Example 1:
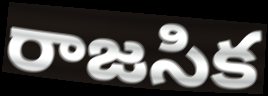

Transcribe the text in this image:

రాజసిక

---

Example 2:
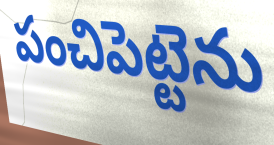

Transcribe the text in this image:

పంచిపెట్టెను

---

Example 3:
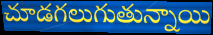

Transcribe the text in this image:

చూడగలుగుతున్నాయి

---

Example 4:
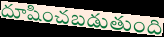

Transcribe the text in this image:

దూషించబడుతుంది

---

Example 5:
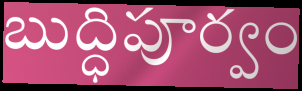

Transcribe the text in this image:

బుద్ధిపూర్వం